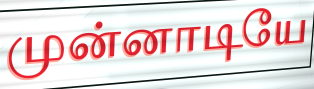
முன்னாடியே